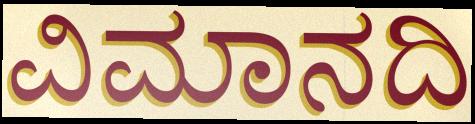
ವಿಮಾನದಿ